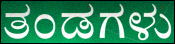
ತಂಡಗಳು